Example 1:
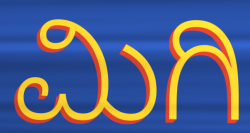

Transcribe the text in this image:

ಮಿಗಿ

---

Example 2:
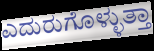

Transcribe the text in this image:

ಎದುರುಗೊಳ್ಳುತ್ತಾ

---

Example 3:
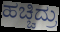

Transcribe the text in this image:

ಹಚ್ಚಿದ್ರು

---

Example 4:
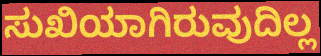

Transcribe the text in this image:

ಸುಖಿಯಾಗಿರುವುದಿಲ್ಲ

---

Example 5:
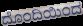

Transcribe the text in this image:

ದೊಂದಿಯಿಂದ